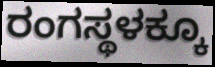
ರಂಗಸ್ಥಳಕ್ಕೂ